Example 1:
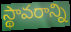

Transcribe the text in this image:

స్థావరాన్ని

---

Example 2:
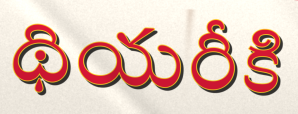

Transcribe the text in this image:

థియరీకి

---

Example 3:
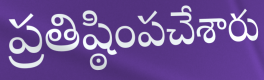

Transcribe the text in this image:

ప్రతిష్ఠింపచేశారు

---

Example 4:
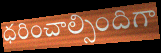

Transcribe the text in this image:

ధరించాల్సిందిగా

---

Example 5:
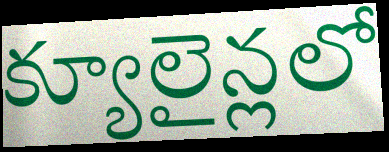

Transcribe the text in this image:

క్యూలైన్లలో